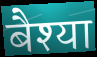
बैश्या